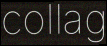
collag